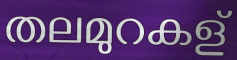
തലമുറകള്